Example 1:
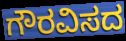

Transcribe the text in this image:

ಗೌರವಿಸದ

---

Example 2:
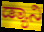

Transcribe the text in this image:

ಡ್ಯಾನಿ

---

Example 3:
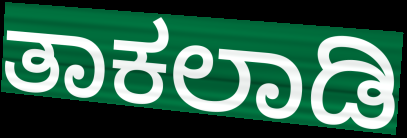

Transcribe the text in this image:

ತಾಕಲಾಡಿ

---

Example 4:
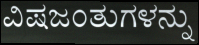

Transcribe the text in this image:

ವಿಷಜಂತುಗಳನ್ನು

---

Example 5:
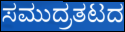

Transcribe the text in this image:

ಸಮುದ್ರತಟದ